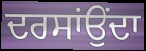
ਦਰਸਾਂਉਂਦਾ